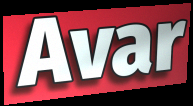
Avar